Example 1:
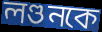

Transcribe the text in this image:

লণ্ডনকে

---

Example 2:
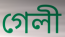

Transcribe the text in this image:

গেলী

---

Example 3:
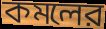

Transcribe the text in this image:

কমলের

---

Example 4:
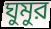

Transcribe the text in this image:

ঘুমুর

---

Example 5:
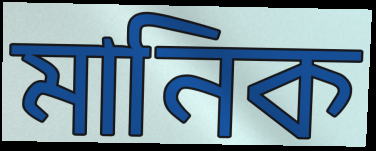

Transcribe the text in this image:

মানিক